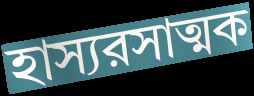
হাস্যরসাত্মক